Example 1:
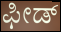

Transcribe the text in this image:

ಫೀಡ್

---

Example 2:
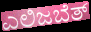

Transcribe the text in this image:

ಎಲಿಜಬೆತ್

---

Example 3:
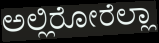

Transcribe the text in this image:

ಅಲ್ಲಿರೋರೆಲ್ಲಾ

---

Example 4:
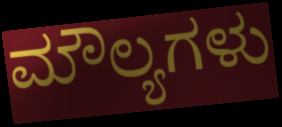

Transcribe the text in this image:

ಮೌಲ್ಯಗಳು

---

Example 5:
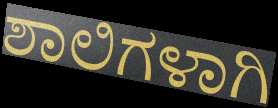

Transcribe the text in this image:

ಶಾಲಿಗಳಾಗಿ